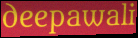
deepawali